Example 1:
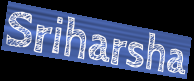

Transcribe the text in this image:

Sriharsha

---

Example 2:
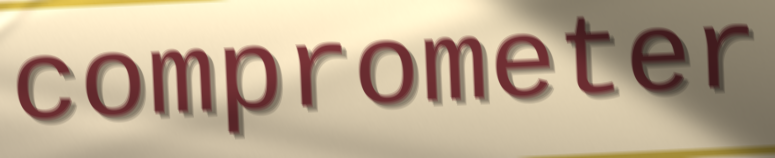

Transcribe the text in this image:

comprometer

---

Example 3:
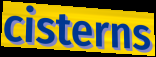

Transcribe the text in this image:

cisterns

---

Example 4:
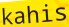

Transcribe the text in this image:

kahis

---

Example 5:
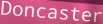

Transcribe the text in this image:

Doncaster